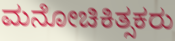
ಮನೋಚಿಕಿತ್ಸಕರು